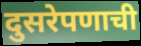
दुसरेपणाची